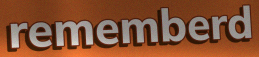
rememberd